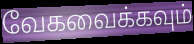
வேகவைக்கவும்